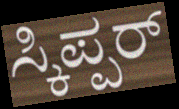
ಸ್ಕಿಪ್ಪರ್